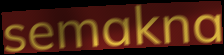
semakna